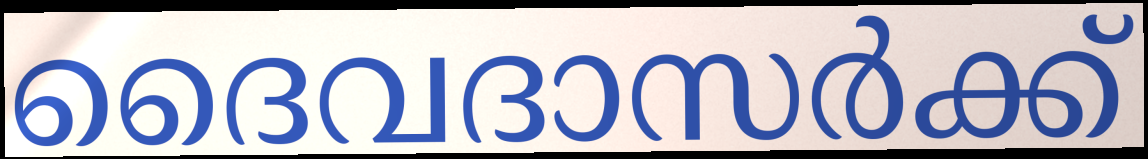
ദൈവദാസർക്ക്